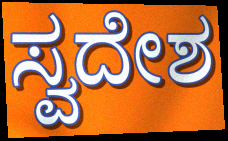
ಸ್ವದೇಶ